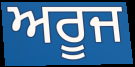
ਅਰੂਜ